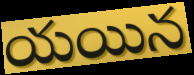
యయిన